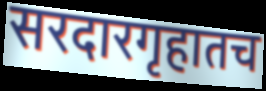
सरदारगृहातच